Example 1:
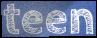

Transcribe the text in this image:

teen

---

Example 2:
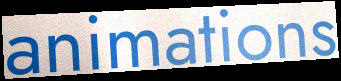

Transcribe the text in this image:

animations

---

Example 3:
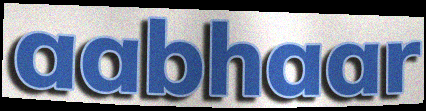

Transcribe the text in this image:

aabhaar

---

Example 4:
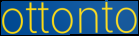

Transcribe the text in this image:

ottonto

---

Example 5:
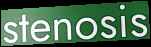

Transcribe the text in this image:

stenosis